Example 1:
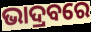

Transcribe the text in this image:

ଭାଦ୍ରବରେ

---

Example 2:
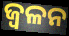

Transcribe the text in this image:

ଜ୍ୱଳନ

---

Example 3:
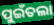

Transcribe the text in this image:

ପୁଇଁତଲା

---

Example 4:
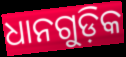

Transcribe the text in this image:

ଧାନଗୁଡ଼ିକ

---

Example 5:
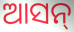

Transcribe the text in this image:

ଆସନ୍